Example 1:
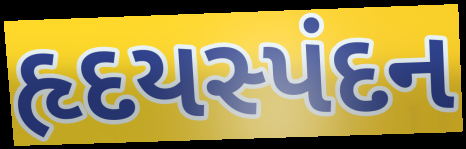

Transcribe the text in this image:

હૃદયસ્પંદન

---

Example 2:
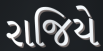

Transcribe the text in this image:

રાજિયે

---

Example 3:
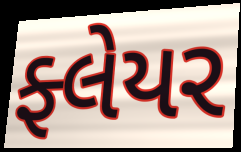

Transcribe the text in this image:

ફ્લેયર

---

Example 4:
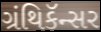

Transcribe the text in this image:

ગ્રંથિકૅન્સર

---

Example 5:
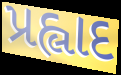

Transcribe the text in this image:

પ્રહ્લાદ